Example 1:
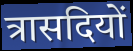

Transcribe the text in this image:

त्रासदियों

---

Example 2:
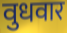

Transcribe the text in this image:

वुधवार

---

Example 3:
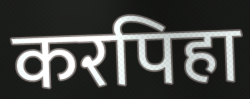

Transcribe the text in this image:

करपिहा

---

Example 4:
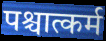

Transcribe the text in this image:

पश्चात्कर्म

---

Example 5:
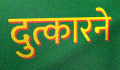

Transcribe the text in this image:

दुत्कारने